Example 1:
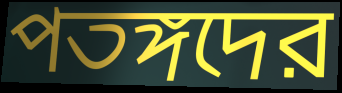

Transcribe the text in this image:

পতঙ্গদের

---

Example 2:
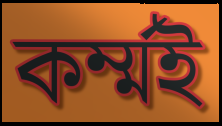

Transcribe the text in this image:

কর্ম্মই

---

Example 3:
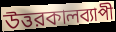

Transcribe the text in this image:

উত্তরকালব্যাপী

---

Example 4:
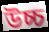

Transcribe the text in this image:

উচ্চ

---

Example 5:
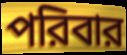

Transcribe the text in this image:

পরিবার